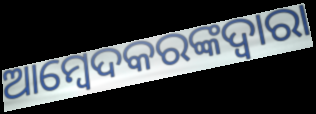
ଆମ୍ବେଦକରଙ୍କଦ୍ୱାରା